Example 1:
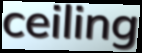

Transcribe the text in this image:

ceiling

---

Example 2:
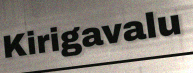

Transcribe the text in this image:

Kirigavalu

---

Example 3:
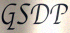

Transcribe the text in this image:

GSDP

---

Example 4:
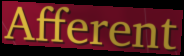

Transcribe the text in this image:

Afferent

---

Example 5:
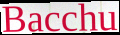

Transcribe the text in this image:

Bacchu